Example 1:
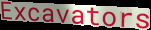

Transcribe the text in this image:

Excavators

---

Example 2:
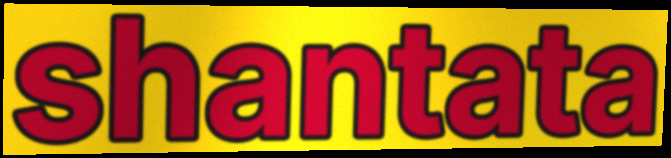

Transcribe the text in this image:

shantata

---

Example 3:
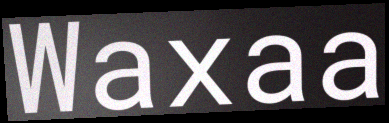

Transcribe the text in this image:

Waxaa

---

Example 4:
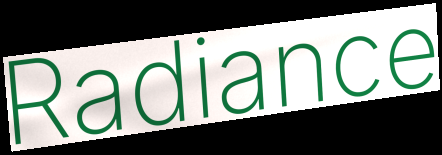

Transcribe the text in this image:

Radiance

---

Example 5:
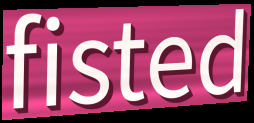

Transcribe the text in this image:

fisted